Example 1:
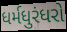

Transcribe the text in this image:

ધર્મધુરંધરો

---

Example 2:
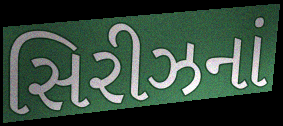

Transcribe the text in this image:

સિરીઝનાં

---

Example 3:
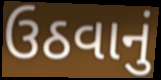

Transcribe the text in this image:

ઉઠવાનું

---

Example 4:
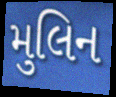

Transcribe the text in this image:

મુલિન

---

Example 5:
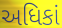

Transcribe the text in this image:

અધિકાં